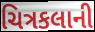
ચિત્રકલાની